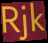
Rjk